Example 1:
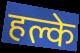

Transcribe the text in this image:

हल्‍के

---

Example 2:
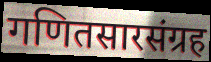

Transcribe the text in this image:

गणितसारसंग्रह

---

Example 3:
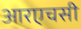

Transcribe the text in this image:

आरएचसी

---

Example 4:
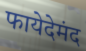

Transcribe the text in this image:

फायेदेमंद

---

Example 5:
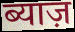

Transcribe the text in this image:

ब्याज़